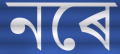
নৰে